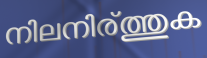
നിലനിര്ത്തുക